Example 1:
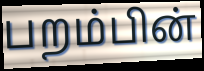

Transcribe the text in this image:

பறம்பின்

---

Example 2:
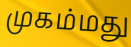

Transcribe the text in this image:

முகம்மது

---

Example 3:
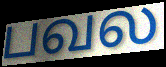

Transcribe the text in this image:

பவல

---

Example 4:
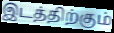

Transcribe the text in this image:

இடத்திற்கும்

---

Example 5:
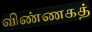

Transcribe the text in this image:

விண்ணகத்